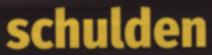
schulden